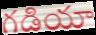
గడియా